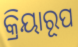
କ୍ରିୟାରୂପ